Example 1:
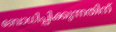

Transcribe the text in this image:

ബോധിപ്പിക്കുന്നതിന്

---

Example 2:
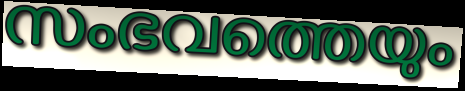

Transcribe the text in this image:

സംഭവത്തെയും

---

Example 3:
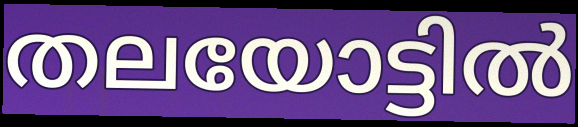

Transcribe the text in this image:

തലയോട്ടിൽ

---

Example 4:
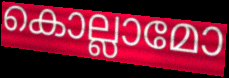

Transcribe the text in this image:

കൊല്ലാമോ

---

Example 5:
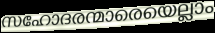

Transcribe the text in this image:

സഹോദരന്മാരെയെല്ലാം